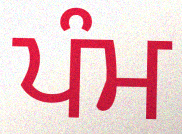
ਪੰਮ